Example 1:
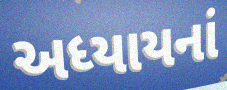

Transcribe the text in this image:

અધ્યાયનાં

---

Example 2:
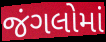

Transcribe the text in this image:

જંગલોમાં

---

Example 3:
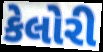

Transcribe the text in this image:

કેલોરી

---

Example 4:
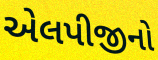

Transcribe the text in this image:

એલપીજીનો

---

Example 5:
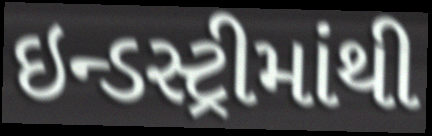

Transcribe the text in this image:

ઇન્ડસ્ટ્રીમાંથી